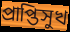
প্রাপ্তিসুখ